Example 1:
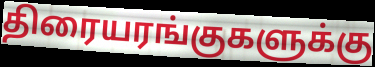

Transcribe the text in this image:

திரையரங்குகளுக்கு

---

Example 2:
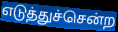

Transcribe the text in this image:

எடுத்துச்சென்ற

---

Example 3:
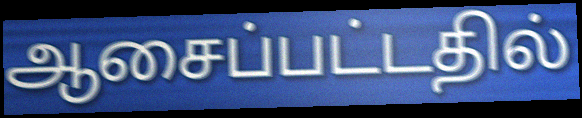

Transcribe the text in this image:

ஆசைப்பட்டதில்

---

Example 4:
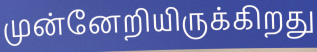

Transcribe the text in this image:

முன்னேறியிருக்கிறது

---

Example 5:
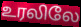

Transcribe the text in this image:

உரலிலே